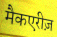
मैकएरीज़